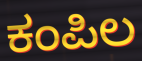
ಕಂಪಿಲ